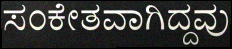
ಸಂಕೇತವಾಗಿದ್ದವು